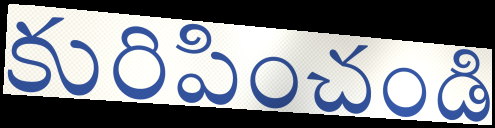
కురిపించండి